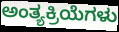
ಅಂತ್ಯಕ್ರಿಯೆಗಳು